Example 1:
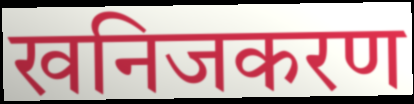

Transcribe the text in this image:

खनिजकरण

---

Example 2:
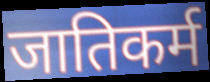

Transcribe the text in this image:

जातिकर्म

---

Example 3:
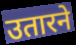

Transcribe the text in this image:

उतारने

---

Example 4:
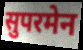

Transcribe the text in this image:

सुपरमेन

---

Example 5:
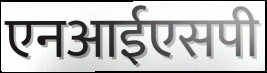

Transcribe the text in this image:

एनआईएसपी